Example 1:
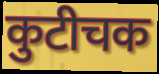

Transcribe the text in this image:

कुटीचक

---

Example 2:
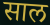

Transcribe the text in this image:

साल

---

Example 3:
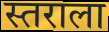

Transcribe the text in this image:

स्तराला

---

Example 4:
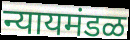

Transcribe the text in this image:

न्यायमंडळ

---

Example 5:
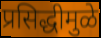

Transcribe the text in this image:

प्रसिद्धीमुळे